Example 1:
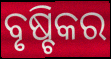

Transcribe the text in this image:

ବୃଷ୍ଚିକର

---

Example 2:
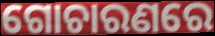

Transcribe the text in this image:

ଗୋଚାରଣରେ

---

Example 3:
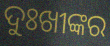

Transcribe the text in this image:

ଦୁଃଖୀଙ୍କର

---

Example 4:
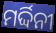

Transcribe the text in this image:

ମର୍ଦ୍ଦିନୀ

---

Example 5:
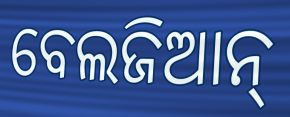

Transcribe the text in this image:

ବେଲଜିଆନ୍